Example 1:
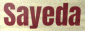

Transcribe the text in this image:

Sayeda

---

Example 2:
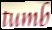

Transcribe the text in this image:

tumb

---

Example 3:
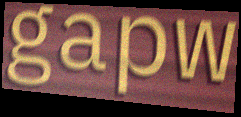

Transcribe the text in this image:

gapw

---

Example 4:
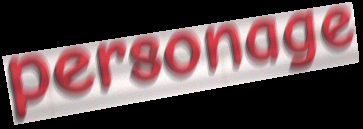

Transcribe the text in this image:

personage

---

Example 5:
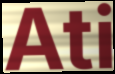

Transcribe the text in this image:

Ati